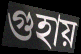
গুহায়